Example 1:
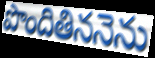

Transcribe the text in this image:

పొందితిననెను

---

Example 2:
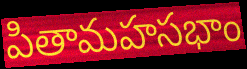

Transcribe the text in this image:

పితామహసభాం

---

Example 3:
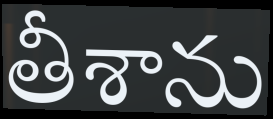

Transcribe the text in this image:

తీశాను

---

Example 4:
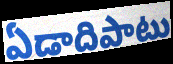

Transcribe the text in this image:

ఏడాదిపాటు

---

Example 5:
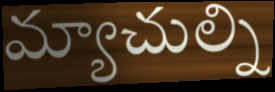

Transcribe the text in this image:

మ్యాచుల్ని